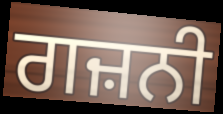
ਗਜ਼ਨੀ